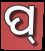
ପ୍